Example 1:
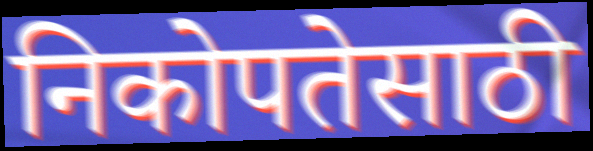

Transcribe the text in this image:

निकोपतेसाठी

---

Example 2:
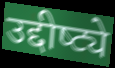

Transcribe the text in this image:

उद्दीष्ट्ये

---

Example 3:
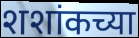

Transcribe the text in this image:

शशांकच्या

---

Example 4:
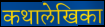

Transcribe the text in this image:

कथालेखिका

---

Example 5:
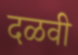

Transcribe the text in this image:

दळवी